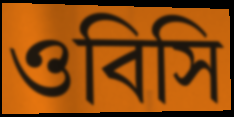
ওবিসি